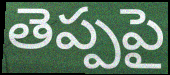
తెప్పపై